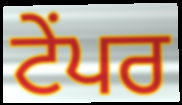
ਟੇਂਪਰ